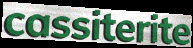
cassiterite